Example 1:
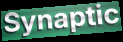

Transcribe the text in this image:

Synaptic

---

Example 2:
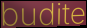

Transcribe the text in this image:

budite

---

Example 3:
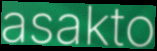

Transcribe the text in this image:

asakto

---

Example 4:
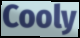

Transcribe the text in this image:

Cooly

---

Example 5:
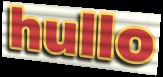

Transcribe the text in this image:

hullo